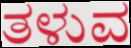
ತಳುವ